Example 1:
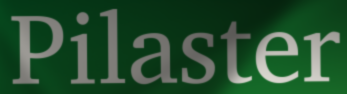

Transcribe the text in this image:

Pilaster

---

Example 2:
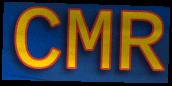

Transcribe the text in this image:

CMR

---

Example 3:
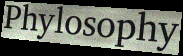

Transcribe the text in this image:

Phylosophy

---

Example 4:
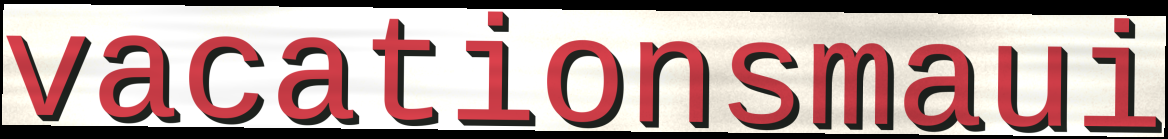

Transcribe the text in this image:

vacationsmaui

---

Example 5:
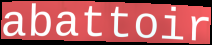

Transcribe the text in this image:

abattoir